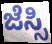
ಜೆಸ್ಸಿ